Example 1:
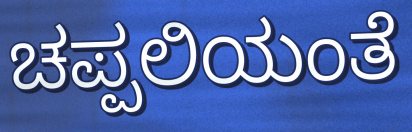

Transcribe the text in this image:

ಚಪ್ಪಲಿಯಂತೆ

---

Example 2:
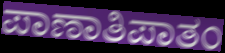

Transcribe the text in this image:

ಪಾಣಾತಿಪಾತಂ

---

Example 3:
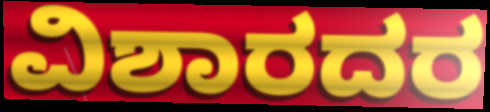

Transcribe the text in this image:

ವಿಶಾರದರ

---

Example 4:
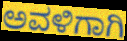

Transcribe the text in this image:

ಅವಳಿಗಾಗಿ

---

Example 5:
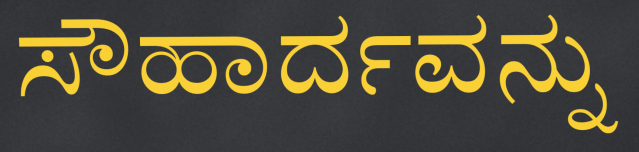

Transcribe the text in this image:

ಸೌಹಾರ್ದವನ್ನು